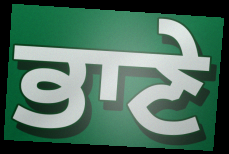
ਭਾਣੇ